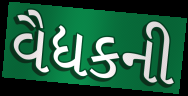
વૈદ્યકની